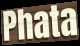
Phata